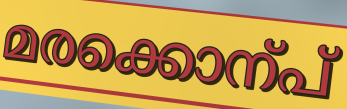
മരക്കൊന്പ്